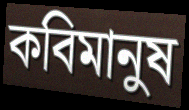
কবিমানুষ